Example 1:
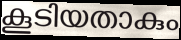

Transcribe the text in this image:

കൂടിയതാകും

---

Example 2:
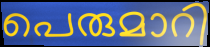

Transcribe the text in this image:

പെരുമാറി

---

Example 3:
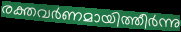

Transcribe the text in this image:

രക്തവർണമായിത്തീർന്നു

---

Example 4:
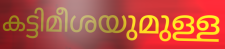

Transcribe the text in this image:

കട്ടിമീശയുമുള്ള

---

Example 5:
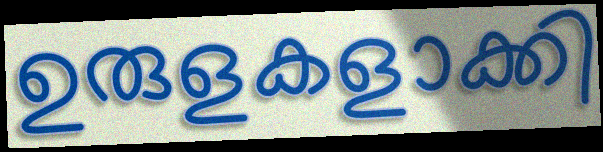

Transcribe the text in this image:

ഉരുളകളാക്കി